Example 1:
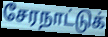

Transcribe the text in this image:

சேரநாட்டுக்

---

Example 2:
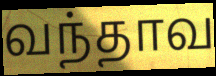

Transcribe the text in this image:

வந்தாவ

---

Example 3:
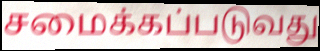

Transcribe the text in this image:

சமைக்கப்படுவது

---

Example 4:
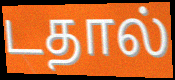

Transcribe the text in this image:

டதால்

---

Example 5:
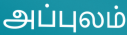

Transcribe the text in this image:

அப்புலம்